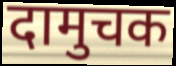
दामुचक